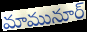
మామునూర్